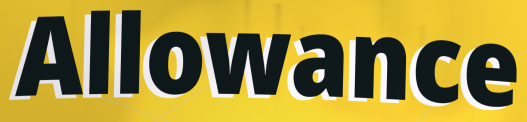
Allowance